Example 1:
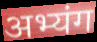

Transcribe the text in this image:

अभ्यंग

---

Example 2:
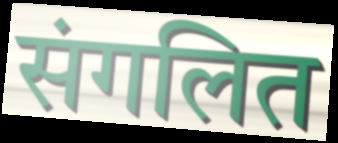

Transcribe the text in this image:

संगलित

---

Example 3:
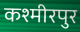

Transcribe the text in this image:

कश्मीरपुर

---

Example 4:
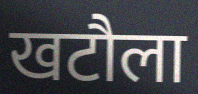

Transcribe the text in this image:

खटौला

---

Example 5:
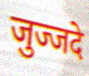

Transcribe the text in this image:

जुज्जदे